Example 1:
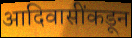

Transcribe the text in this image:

आदिवासींकडून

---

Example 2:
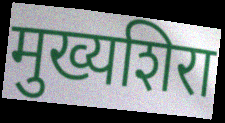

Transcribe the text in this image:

मुख्यशिरा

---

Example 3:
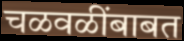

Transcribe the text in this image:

चळवळींबाबत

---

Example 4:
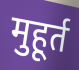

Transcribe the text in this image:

मुहूर्त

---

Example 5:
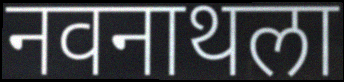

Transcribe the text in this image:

नवनाथला